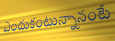
ఎందుకంటున్నానంటే